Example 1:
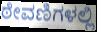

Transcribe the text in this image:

ಠೇವಣಿಗಳಲ್ಲಿ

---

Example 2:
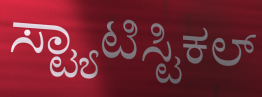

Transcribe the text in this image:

ಸ್ಟ್ಯಾಟಿಸ್ಟಿಕಲ್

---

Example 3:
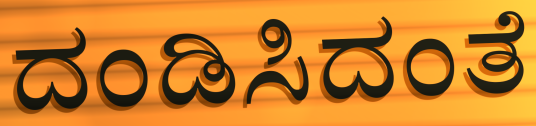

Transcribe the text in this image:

ದಂಡಿಸಿದಂತೆ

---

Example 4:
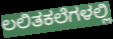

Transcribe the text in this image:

ಲಲಿತಕಲೆಗಳಲ್ಲಿ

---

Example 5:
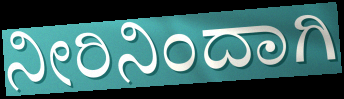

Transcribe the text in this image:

ನೀರಿನಿಂದಾಗಿ